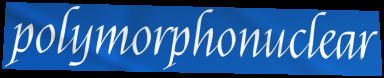
polymorphonuclear